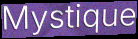
Mystique